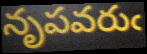
నృపవరుఁ